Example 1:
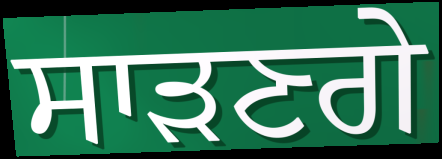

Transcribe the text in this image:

ਸਾੜਣਗੇ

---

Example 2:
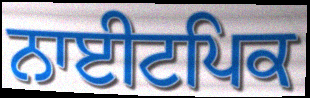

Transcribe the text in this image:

ਨਾਈਟਪਿਕ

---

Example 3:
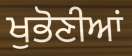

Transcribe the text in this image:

ਖੁਭੋਣੀਆਂ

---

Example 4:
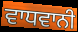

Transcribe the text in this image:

ਵਾਧਵਾਨੀ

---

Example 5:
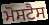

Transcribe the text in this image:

ਮੋਸਟੈਸ